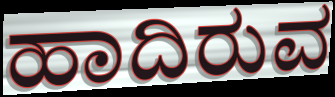
ಹಾದಿರುವ